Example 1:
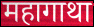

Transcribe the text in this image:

महागाथा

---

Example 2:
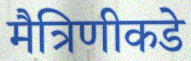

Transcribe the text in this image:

मैत्रिणीकडे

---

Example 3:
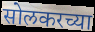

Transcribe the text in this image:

सोलकरच्या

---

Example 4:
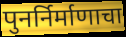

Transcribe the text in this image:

पुनर्निर्माणाचा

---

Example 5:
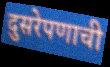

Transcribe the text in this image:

दुसरेपणाची